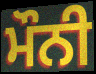
ਮੌਨੀ